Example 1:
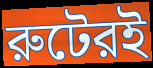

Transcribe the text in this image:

রুটেরই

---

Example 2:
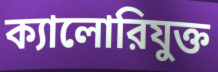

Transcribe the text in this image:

ক্যালোরিযুক্ত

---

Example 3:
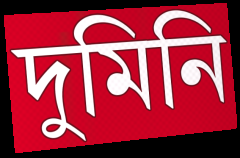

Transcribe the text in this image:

দুমিনি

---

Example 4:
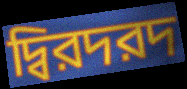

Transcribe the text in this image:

দ্বিরদরদ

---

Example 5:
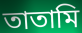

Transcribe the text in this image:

তাতামি